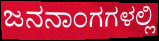
ಜನನಾಂಗಗಳಲ್ಲಿ